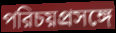
পরিচয়প্রসঙ্গে